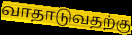
வாதாடுவதற்கு